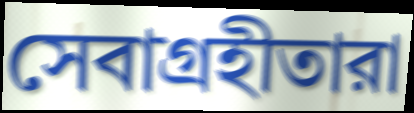
সেবাগ্রহীতারা